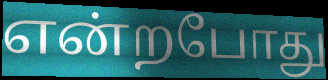
என்றபோது